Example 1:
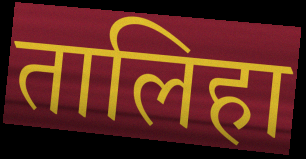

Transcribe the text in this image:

तालिहा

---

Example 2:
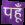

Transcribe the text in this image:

पहूँ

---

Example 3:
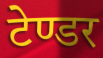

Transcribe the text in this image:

टेण्‍डर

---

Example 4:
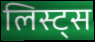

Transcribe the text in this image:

लिस्ट्स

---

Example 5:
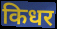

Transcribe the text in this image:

किधर